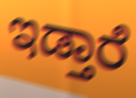
ಇಡ್ತಾರೆ